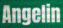
Angelin